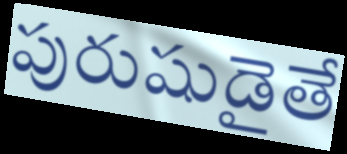
పురుషుడైతే